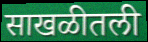
साखळीतली